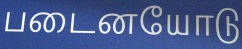
படைனயோடு